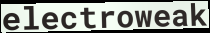
electroweak